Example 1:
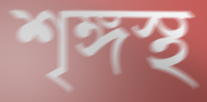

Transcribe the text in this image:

শৃঙ্গস্থ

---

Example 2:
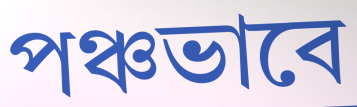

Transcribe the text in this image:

পঞ্চভাবে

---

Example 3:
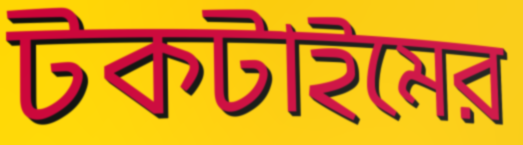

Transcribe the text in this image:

টকটাইমের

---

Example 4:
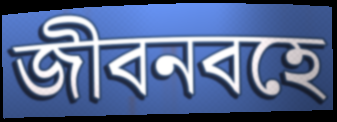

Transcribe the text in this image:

জীবনবহে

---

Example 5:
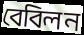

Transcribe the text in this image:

বেবিলন